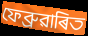
ফেব্ৰুৱাৰিত